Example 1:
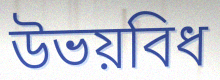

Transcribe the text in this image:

উভয়বিধ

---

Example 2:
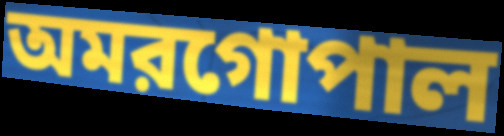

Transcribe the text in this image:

অমরগোপাল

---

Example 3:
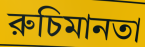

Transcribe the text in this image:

রুচিমানতা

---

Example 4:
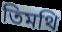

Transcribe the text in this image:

তিমথি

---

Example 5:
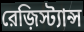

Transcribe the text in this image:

রেজ়িস্ট্যান্স